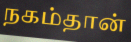
நகம்தான்